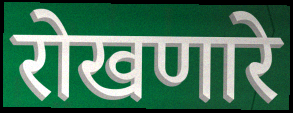
रोखणारे